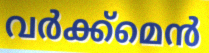
വർക്ക്മെൻ